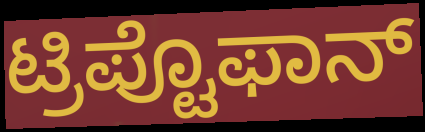
ಟ್ರಿಪ್ಟೊಫಾನ್